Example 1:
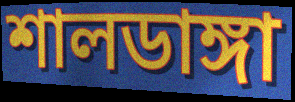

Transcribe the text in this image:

শালডাঙ্গা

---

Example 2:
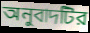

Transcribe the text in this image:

অনুবাদটির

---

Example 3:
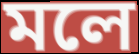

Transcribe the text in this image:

মলে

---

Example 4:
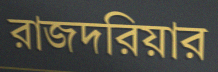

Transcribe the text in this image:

রাজদরিয়ার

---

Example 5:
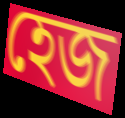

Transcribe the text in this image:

হেজ